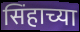
सिंहाच्या